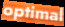
optimal